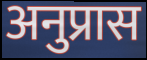
अनुप्रास